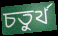
চতুর্থ